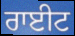
ਰਾਈਟ